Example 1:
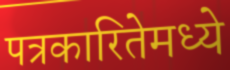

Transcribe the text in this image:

पत्रकारितेमध्ये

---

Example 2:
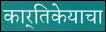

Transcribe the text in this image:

कार्तिकेयाचा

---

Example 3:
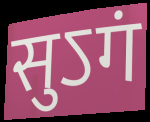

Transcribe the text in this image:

सुऽगं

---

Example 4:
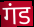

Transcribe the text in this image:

गंड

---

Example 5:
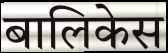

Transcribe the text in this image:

बालिकेस